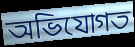
অভিযোগত